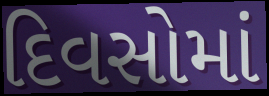
દિવસોમાં